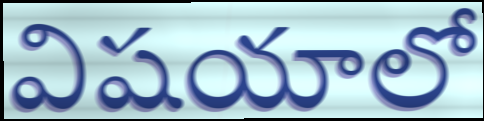
విషయాలో